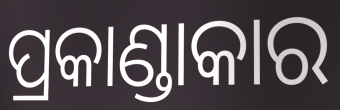
ପ୍ରକାଣ୍ଡାକାର